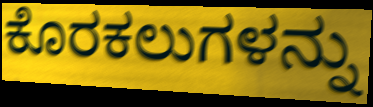
ಕೊರಕಲುಗಳನ್ನು